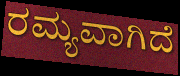
ರಮ್ಯವಾಗಿದೆ